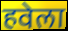
हवेला